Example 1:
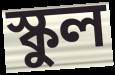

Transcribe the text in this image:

স্কুল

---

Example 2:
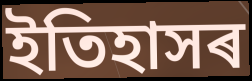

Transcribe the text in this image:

ইতিহাসৰ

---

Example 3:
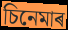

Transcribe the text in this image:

চিনেমাৰ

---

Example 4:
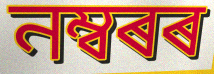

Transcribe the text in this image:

নম্বৰৰ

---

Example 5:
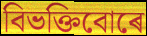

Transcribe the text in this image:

বিভক্তিবোৰে